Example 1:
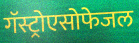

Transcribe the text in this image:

गॅस्ट्रोएसोफेजल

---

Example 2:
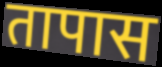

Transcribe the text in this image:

तापास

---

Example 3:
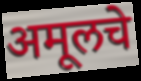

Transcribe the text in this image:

अमूलचे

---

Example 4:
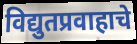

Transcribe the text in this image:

विद्युतप्रवाहाचे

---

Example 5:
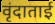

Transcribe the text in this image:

वृंदाताई